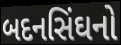
બદનસિંઘનો